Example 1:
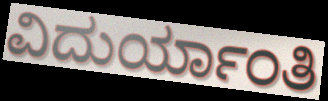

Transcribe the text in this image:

ವಿದುರ್ಯಾಂತಿ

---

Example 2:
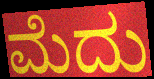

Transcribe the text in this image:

ಮೆದು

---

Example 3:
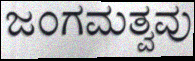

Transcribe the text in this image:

ಜಂಗಮತ್ವವು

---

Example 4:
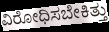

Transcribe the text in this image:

ವಿರೋಧಿಸಬೇಕಿತ್ತು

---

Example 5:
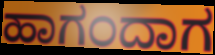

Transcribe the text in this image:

ಹಾಗಂದಾಗ